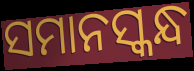
ସମାନସ୍କନ୍ଧ